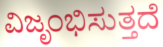
ವಿಜೃಂಭಿಸುತ್ತದೆ